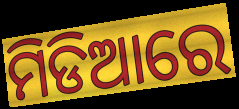
ମିଡିଆରେ